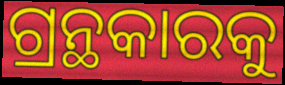
ଗ୍ରନ୍ଥକାରକୁ